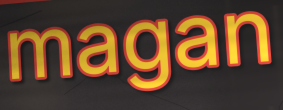
magan